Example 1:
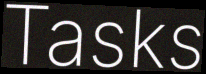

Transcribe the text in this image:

Tasks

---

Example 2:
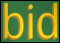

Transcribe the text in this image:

bid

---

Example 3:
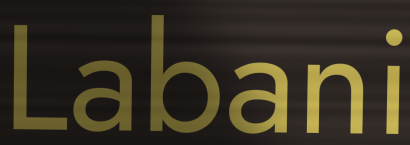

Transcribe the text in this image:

Labani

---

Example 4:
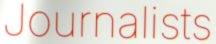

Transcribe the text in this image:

Journalists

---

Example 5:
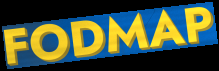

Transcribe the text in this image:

FODMAP